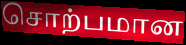
சொற்பமான